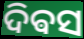
ଦିଵସ